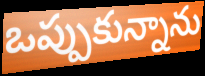
ఒప్పుకున్నాను